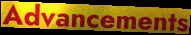
Advancements